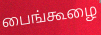
பைங்கூழை